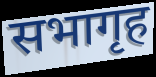
सभागृह